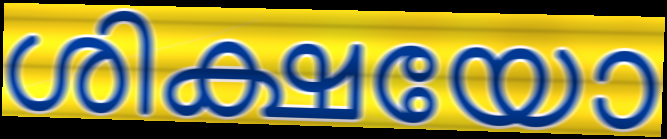
ശിക്ഷയോ